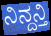
ನಿನ್ದನ್ತಿ